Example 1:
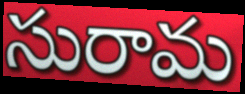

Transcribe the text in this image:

సురామ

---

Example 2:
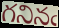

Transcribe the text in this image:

గనినఁ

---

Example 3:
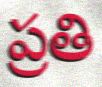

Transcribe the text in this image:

ప్రతి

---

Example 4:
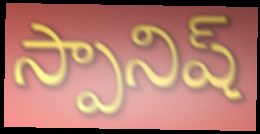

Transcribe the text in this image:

స్పానిష్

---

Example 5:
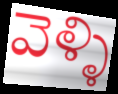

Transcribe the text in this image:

వెళ్ళి